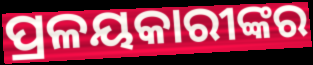
ପ୍ରଳୟକାରୀଙ୍କର